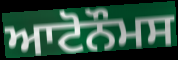
ਆਟੋਨੌਮਸ